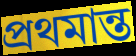
প্ৰথমান্ত